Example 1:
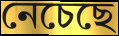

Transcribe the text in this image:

নেচেছে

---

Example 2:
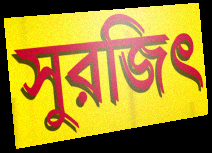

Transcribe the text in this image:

সুরজিৎ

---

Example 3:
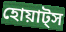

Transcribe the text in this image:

হোয়াট্স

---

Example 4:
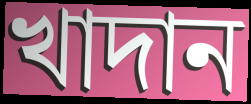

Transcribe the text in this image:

খাদান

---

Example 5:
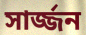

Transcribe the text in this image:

সার্জ্জন